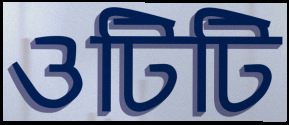
ওটিটি